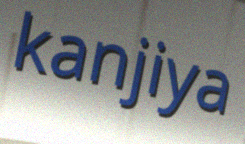
kanjiya